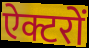
ऐक्टरों